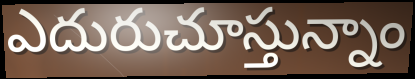
ఎదురుచూస్తున్నాం